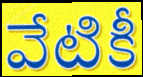
వేటికీ